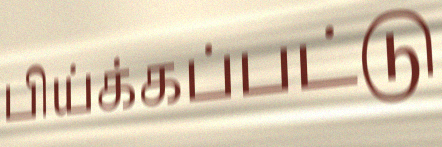
பிய்க்கப்பட்டு